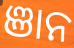
ଞାନ